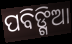
ପବିଙ୍ଗିଆ